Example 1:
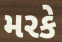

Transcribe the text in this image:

મરકે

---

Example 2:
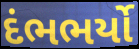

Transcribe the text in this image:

દંભભર્યો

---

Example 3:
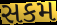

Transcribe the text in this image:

સકમ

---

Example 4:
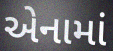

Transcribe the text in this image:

એનામાં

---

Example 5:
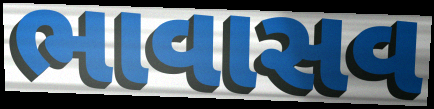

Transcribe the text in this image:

ભાવાસવ